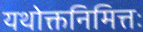
यथोक्तनिमित्तः